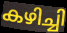
കഴിച്ചി